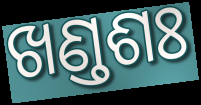
ଖଣ୍ଡଶଃ